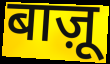
बाज़ू